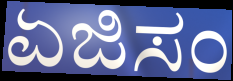
ಏಜಿಸಂ